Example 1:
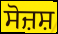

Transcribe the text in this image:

ਸੋਜ਼ਸ਼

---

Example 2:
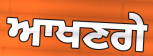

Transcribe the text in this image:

ਆਖਣਗੇ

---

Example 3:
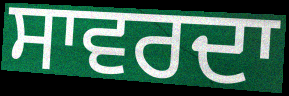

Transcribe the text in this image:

ਸਾਵਰਦਾ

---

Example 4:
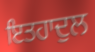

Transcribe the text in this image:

ਇਤਹਾਦੁਲ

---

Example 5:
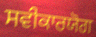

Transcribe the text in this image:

ਸਵੀਕਾਰਯੋਗ